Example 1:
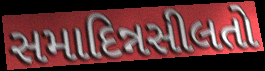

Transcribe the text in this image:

સમાદિન્નસીલતો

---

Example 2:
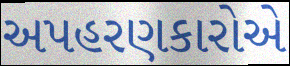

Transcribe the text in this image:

અપહરણકારોએ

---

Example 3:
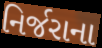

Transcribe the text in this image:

નિર્જરાના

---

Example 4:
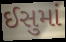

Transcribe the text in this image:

ઈસુમાં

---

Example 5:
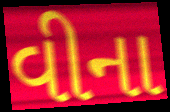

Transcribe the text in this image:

વીના